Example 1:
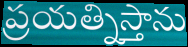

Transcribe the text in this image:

ప్రయత్నిస్తాను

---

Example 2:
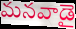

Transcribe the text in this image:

మనవాడై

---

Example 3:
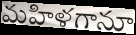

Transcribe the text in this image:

మహిళగానూ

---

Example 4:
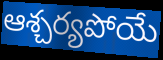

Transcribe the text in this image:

ఆశ్చర్యపోయే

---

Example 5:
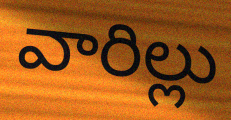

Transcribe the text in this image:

వారిల్లు